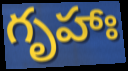
గృహాః